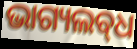
ଭାଗ୍ୟଲବ୍‌ଧ